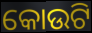
କୋଉଟି